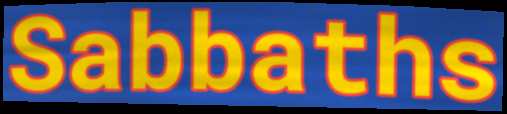
Sabbaths